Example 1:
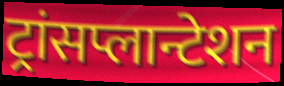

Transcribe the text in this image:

ट्रांसप्लान्टेशन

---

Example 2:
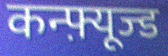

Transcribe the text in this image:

कन्फ़्यूज्ड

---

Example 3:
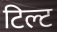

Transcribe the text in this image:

टिल्ट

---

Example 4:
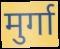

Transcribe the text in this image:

मुर्गा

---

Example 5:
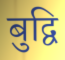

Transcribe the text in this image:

बुद्वि